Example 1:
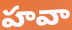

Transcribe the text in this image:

హవా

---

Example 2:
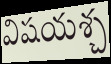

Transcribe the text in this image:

విషయశ్చ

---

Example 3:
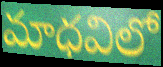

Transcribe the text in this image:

మాధవిలో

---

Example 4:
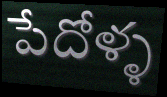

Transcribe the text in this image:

పేదోళ్ళ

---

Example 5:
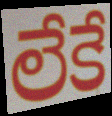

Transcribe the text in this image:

లేకే